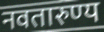
नवतारुण्य